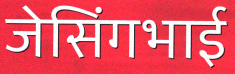
जेसिंगभाई